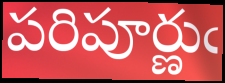
పరిపూర్ణుఁ